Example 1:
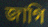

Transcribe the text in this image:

জাগি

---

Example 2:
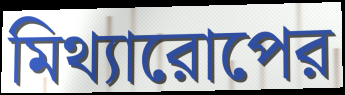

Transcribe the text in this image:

মিথ্যারোপের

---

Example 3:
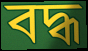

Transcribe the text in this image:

বদ্ধ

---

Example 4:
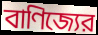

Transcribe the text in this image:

বাণিজ্যের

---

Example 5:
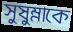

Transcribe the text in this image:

সুষুম্নাকে